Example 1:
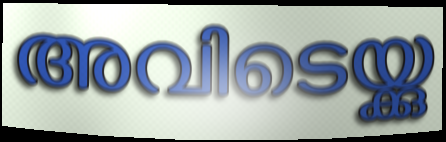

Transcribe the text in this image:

അവിടെയ്ക്കു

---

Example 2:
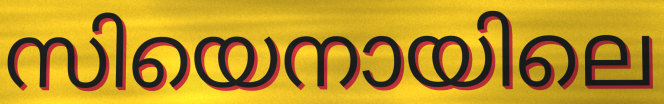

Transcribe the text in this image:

സിയെനായിലെ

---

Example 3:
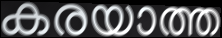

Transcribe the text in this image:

കരയാത്ത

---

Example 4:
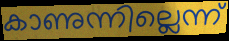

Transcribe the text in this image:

കാണുന്നില്ലെന്ന്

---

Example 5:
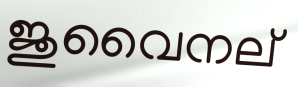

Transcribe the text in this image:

ജുവൈനല്